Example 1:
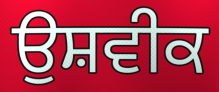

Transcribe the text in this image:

ਉਸ਼ਵੀਕ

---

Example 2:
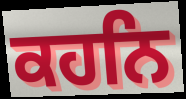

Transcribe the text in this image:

ਕਹਨਿ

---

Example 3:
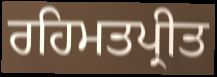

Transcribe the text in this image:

ਰਹਿਮਤਪ੍ਰੀਤ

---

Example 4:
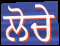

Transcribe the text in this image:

ਲੋਚੇ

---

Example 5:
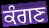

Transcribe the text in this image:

ਕੰਗਣ